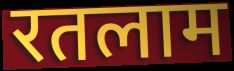
रतलाम